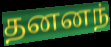
தனனந்